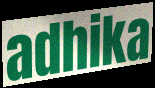
adhika